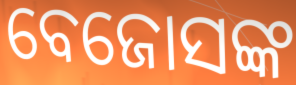
ବେଜୋସଙ୍କ